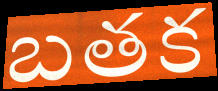
బతక